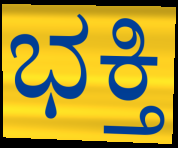
ಭಕ್ತಿ